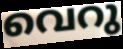
വെറു